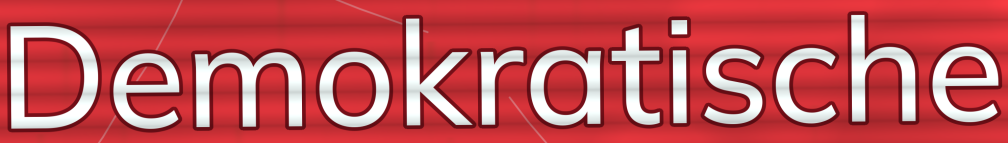
Demokratische